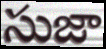
సుజా